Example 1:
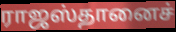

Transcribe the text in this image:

ராஜஸ்தானைச்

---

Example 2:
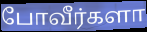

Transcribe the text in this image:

போவீர்களா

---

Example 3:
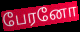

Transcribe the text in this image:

பேரனோ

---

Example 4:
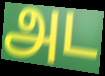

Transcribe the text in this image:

அட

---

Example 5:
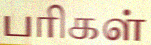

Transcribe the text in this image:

பரிகள்